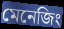
মেনেজিং